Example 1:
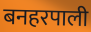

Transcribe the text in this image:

बनहरपाली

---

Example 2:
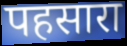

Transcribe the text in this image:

पहसारा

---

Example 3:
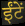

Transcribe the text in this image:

ईंटें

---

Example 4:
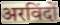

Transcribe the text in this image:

अरविंदों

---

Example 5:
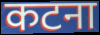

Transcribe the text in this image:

कटना